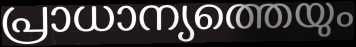
പ്രാധാന്യത്തെയും